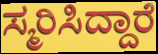
ಸ್ಮರಿಸಿದ್ದಾರೆ